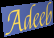
Adeeb